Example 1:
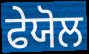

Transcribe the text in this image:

ਫੇਯੋਲ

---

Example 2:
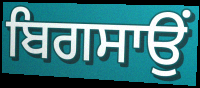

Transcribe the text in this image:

ਬਿਗਸਾਉਂ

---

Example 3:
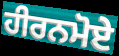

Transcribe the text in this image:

ਹੀਰਨਮੋਏ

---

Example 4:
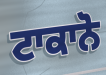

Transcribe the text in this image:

ਟਾਕਾਨੋ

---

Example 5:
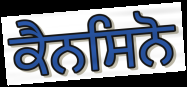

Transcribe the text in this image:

ਕੈਨਸਿਨੋ